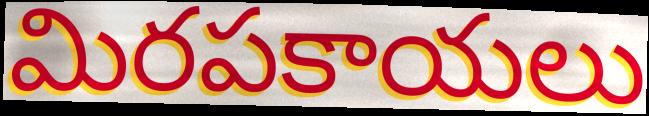
మిరపకాయలు